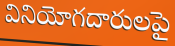
వినియోగదారులపై